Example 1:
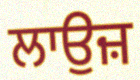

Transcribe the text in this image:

ਲਾਉਜ਼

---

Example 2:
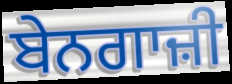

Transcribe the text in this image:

ਬੇਨਗਾਜ਼ੀ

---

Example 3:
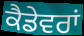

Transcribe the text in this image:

ਕੈਡੇਵਰਾਂ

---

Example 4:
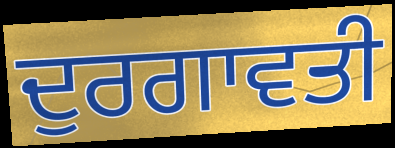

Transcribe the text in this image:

ਦੁਰਗਾਵਤੀ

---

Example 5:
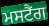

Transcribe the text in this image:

ਮਸਟੈਂਗ